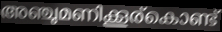
അഞ്ചുമണിക്കൂര്കൊണ്ട്